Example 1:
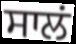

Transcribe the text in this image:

ਸਾਲਂ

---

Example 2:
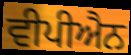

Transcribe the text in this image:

ਵੀਪੀਐਨ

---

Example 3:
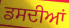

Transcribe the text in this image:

ਡਸਦੀਆਂ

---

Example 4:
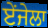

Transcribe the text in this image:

ਏਂਜੇਲਾ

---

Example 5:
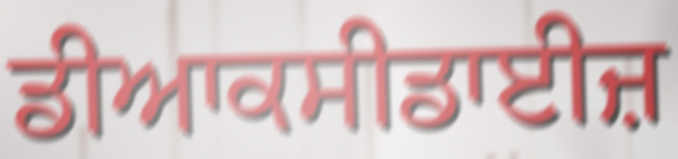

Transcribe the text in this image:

ਡੀਆਕਸੀਡਾਈਜ਼